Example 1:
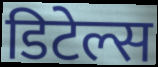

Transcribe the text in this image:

डिटेल्स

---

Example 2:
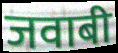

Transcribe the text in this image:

जवाबी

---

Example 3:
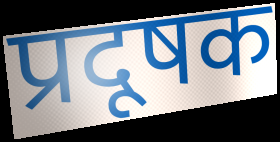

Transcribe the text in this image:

प्रदूषक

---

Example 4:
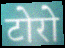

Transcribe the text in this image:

टोरो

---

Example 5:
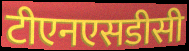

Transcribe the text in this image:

टीएनएसडीसी